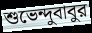
শুভেন্দুবাবুর